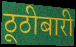
ठूठीबारी